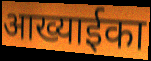
आख्याईका